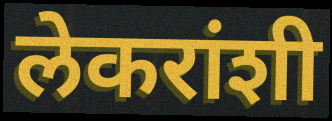
लेकरांशी